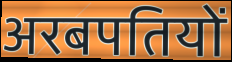
अरबपतियों